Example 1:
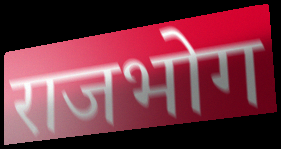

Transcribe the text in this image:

राजभोग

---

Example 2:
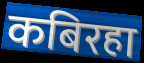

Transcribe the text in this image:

कबिरहा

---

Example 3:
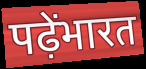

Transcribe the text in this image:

पढ़ेंभारत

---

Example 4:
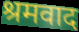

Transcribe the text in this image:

श्रमवाद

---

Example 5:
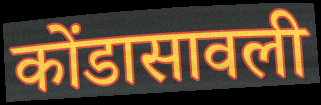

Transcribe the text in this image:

कोंडासावली